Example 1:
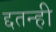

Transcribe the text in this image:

द्दतन्ही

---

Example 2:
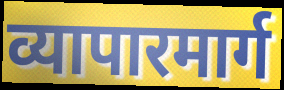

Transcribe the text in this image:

व्यापारमार्ग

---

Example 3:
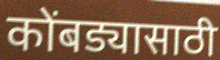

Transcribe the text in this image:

कोंबड्यासाठी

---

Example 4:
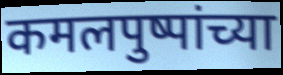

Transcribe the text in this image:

कमलपुष्पांच्या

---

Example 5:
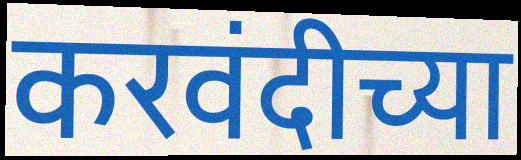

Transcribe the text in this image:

करवंदीच्या